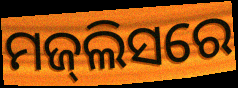
ମଜ୍‍ଲିସରେ